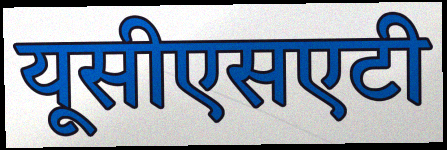
यूसीएसएटी